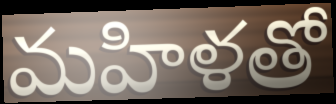
మహిళతో